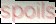
spoils